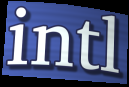
intl